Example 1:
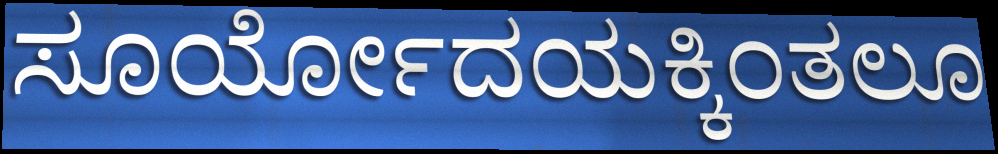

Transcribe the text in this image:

ಸೂರ್ಯೋದಯಕ್ಕಿಂತಲೂ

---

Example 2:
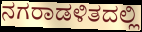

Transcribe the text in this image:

ನಗರಾಡಳಿತದಲ್ಲಿ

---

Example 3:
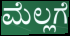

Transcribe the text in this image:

ಮೆಲ್ಲಗೆ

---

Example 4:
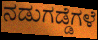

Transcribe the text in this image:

ನಡುಗಡ್ಡೆಗಳೆ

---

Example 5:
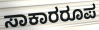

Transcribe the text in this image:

ಸಾಕಾರರೂಪ